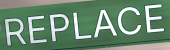
REPLACE